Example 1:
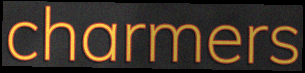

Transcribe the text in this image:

charmers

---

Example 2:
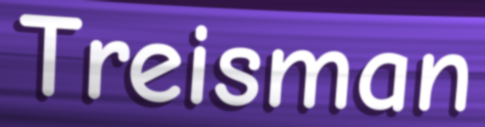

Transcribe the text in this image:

Treisman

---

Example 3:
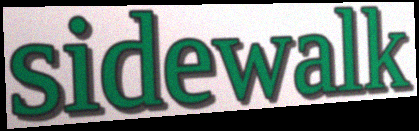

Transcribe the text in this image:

sidewalk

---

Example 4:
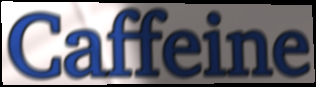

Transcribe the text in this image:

Caffeine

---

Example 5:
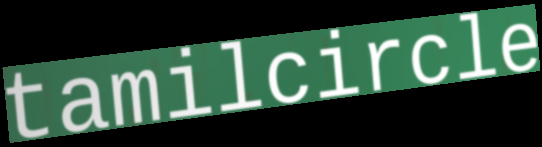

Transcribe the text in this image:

tamilcircle